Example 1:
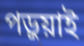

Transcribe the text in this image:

পড়ুয়াই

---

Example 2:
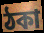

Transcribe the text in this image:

ঠকা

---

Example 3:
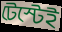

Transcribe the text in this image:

টেস্টেই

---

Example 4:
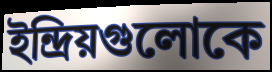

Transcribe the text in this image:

ইন্দ্রিয়গুলোকে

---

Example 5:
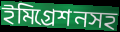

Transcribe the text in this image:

ইমিগ্রেশনসহ